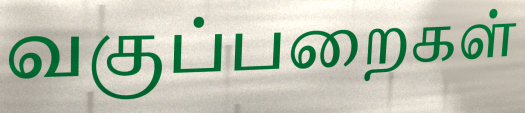
வகுப்பறைகள்